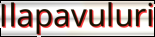
Ilapavuluri